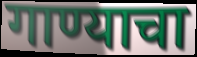
गाण्याचा